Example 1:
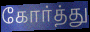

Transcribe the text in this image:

கோர்த்து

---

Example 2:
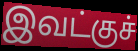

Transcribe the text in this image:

இவட்குச்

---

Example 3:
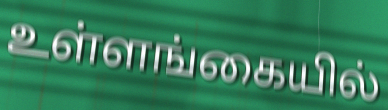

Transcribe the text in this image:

உள்ளங்கையில்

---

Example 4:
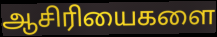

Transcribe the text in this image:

ஆசிரியைகளை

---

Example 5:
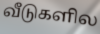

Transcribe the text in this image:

வீடுகளில